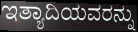
ಇತ್ಯಾದಿಯವರನ್ನು